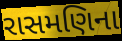
રાસમણિના